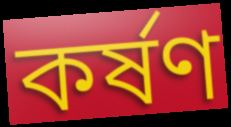
কর্ষণ